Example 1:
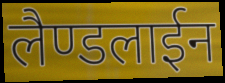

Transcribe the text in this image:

लैण्डलाईन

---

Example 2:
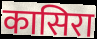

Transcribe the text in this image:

कासिरा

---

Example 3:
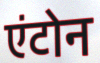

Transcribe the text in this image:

एंटोन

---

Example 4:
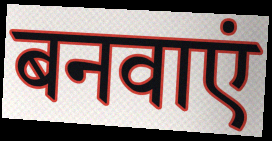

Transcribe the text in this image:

बनवाएं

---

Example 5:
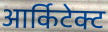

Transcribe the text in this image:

आर्किटेक्ट